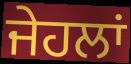
ਜੇਹਲਾਂ